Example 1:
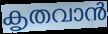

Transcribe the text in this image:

കൃതവാൻ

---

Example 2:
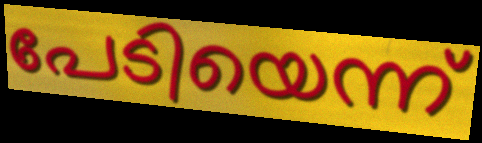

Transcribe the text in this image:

പേടിയെന്ന്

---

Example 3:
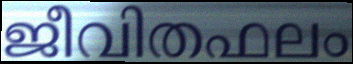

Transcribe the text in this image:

ജീവിതഫലം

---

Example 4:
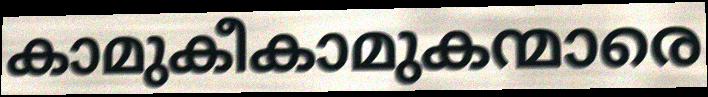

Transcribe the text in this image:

കാമുകീകാമുകന്മാരെ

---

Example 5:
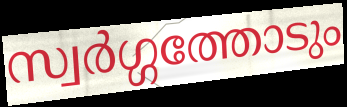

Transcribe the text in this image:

സ്വർഗ്ഗത്തോടും